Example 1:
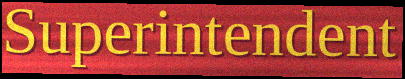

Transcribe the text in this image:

Superintendent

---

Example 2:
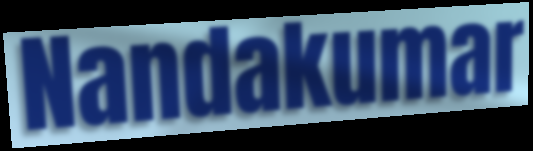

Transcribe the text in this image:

Nandakumar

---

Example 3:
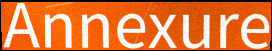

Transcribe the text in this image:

Annexure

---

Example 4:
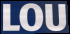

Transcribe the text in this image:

LOU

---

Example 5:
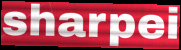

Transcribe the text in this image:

sharpei